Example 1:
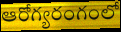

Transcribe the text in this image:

ఆరోగ్యరంగంలో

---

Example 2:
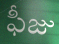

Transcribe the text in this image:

ఫీజు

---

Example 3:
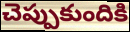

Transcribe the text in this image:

చెప్పుకుందికి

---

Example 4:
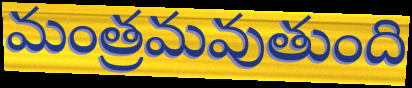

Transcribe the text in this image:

మంత్రమవుతుంది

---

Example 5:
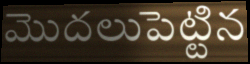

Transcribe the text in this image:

మొదలుపెట్టిన